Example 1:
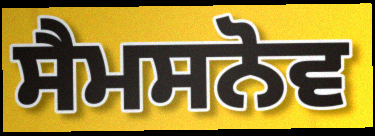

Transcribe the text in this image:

ਸੈਮਸਨੋਵ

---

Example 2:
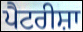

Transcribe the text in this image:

ਪੈਟਰੀਸ਼ਾ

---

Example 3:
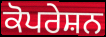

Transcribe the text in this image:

ਕੋਪਰੇਸ਼ਨ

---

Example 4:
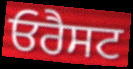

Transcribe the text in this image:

ਓਰੈਸਟ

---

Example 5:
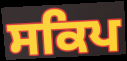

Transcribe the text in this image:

ਸਕਿਪ